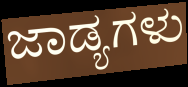
ಜಾಡ್ಯಗಳು